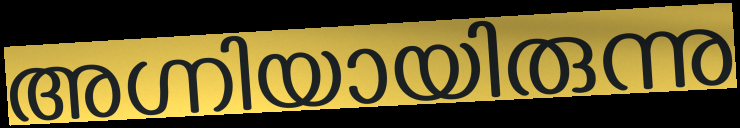
അഗ്നിയായിരുന്നു